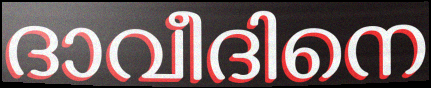
ദാവീദിനെ